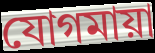
যোগমায়া